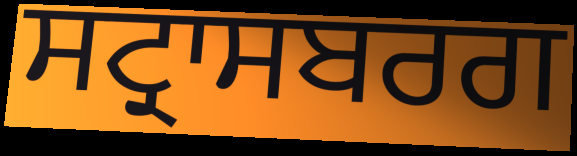
ਸਟ੍ਰਾਸਬਰਗ